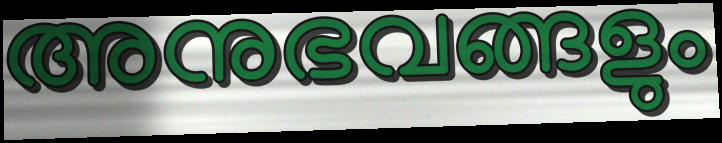
അനുഭവങ്ങളും